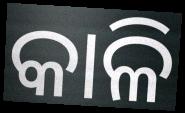
କାଳି